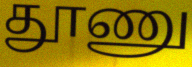
தூணு